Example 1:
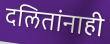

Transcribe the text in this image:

दलितांनाही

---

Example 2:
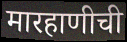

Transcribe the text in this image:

मारहाणीची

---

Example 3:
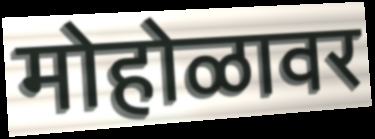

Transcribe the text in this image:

मोहोळावर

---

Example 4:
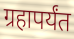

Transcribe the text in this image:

ग्रहापर्यंत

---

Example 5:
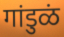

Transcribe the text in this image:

गांडुळं